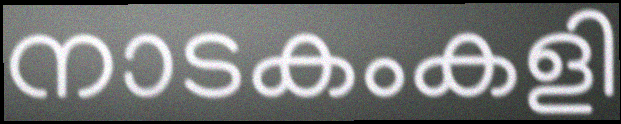
നാടകംകളി